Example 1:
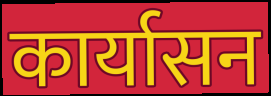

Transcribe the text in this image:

कार्यासन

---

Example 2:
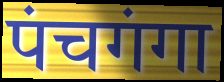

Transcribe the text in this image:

पंचगंगा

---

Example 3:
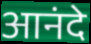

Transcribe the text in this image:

आनंदे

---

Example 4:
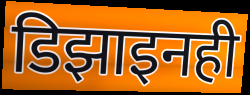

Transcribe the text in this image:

डिझाइनही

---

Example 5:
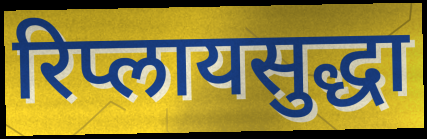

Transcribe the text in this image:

रिप्लायसुद्धा